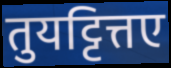
तुयट्टित्तए